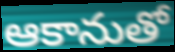
ఆకానుతో